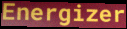
Energizer